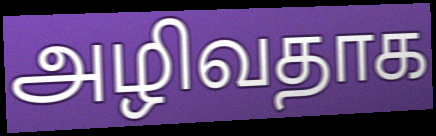
அழிவதாக